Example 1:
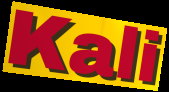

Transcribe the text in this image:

Kali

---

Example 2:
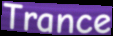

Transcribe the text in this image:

Trance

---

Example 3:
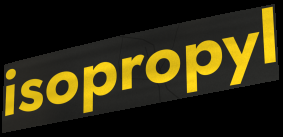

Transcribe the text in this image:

isopropyl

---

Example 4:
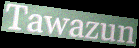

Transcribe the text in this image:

Tawazun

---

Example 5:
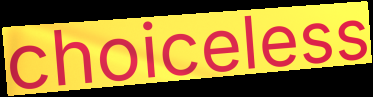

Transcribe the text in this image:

choiceless